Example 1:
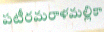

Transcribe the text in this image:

పటీరమరాళమల్లికా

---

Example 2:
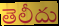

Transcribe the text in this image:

తెలీదు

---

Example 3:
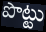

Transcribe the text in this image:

పొట్టు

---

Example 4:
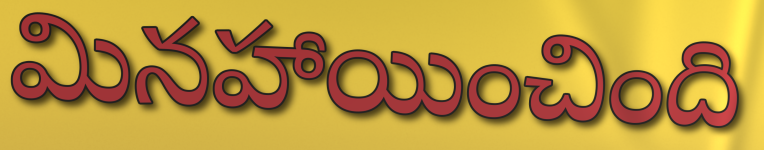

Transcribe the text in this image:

మినహాయించింది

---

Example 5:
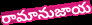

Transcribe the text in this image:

రామానుజాయ